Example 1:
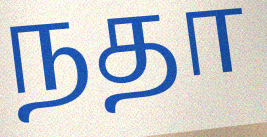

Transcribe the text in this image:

நதா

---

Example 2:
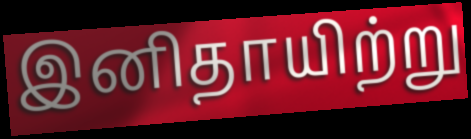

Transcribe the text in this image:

இனிதாயிற்று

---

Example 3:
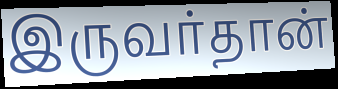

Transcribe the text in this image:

இருவர்தான்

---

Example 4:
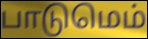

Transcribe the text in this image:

பாடுமெம்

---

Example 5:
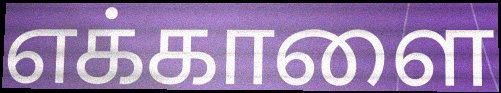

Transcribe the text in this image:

எக்காளை